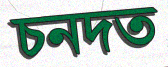
চনদত